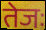
तेजः